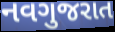
નવગુજરાત